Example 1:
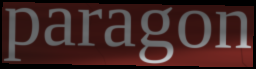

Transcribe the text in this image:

paragon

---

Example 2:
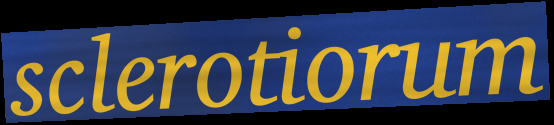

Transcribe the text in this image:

sclerotiorum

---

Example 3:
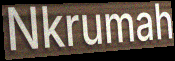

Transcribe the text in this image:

Nkrumah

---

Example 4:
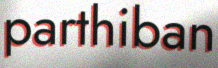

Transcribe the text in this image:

parthiban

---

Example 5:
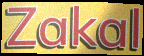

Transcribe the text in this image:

Zakal